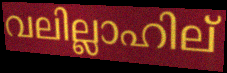
വലില്ലാഹില്